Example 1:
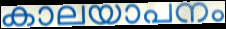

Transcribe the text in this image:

കാലയാപനം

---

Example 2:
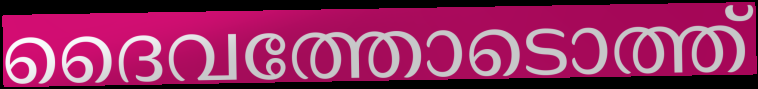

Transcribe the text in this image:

ദൈവത്തോടൊത്ത്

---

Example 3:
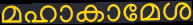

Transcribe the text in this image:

മഹാകാമേശ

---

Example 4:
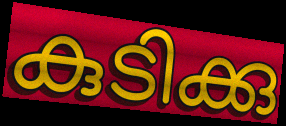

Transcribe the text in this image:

കുടിക്കു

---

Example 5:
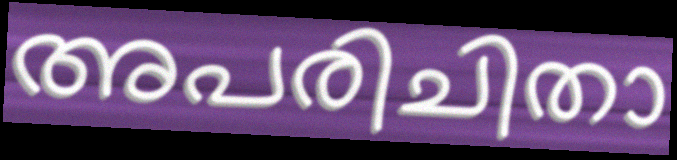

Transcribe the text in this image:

അപരിചിതാ